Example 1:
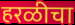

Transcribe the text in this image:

हरळीचा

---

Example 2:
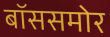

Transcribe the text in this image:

बॉससमोर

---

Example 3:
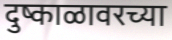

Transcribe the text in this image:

दुष्काळावरच्या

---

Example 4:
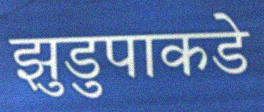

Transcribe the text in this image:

झुडुपाकडे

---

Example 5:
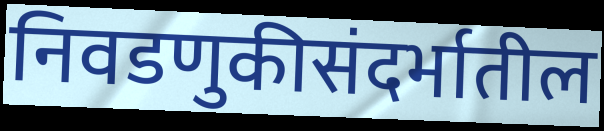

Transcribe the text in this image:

निवडणुकीसंदर्भातील